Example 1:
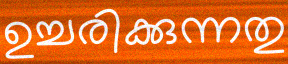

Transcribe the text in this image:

ഉച്ചരിക്കുന്നതു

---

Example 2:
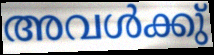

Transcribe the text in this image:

അവൾക്കു്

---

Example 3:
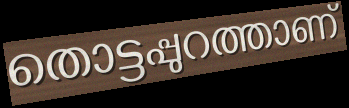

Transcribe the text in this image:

തൊട്ടപ്പുറത്താണ്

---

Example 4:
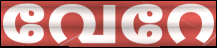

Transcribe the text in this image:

വേറേ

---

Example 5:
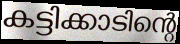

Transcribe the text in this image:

കട്ടിക്കാടിന്റെ